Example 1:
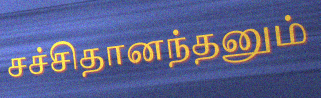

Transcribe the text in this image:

சச்சிதானந்தனும்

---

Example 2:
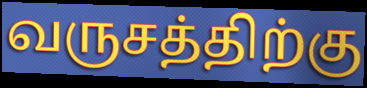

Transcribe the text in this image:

வருசத்திற்கு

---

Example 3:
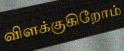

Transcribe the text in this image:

விளக்குகிறோம்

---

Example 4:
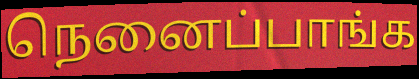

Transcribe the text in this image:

நெனைப்பாங்க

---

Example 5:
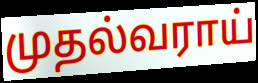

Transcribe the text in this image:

முதல்வராய்